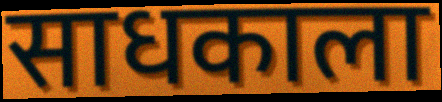
साधकाला